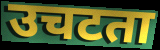
उचटता